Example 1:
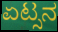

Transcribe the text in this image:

ಏಟ್ಸನ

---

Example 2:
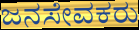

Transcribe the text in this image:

ಜನಸೇವಕರು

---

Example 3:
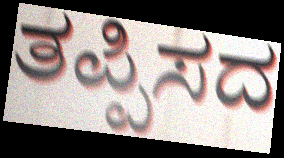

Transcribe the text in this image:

ತಪ್ಪಿಸದ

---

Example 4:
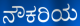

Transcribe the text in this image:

ನೌಕರಿಯ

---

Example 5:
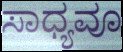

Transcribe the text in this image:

ಸಾಧ್ಯವೂ